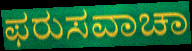
ಫರುಸವಾಚಾ